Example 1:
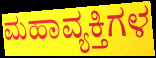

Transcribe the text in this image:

ಮಹಾವ್ಯಕ್ತಿಗಳ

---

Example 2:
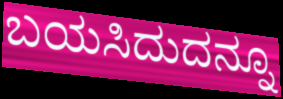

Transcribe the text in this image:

ಬಯಸಿದುದನ್ನೂ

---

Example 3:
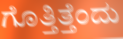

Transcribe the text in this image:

ಗೊತ್ತಿತ್ತೆಂದು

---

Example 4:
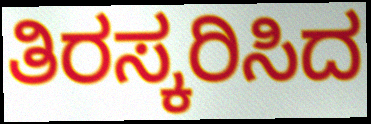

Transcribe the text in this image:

ತಿರಸ್ಕರಿಸಿದ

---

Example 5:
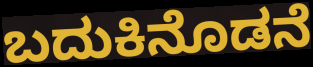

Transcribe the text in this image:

ಬದುಕಿನೊಡನೆ